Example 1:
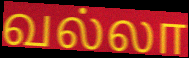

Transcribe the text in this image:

வல்லா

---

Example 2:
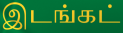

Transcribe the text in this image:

இடங்கட்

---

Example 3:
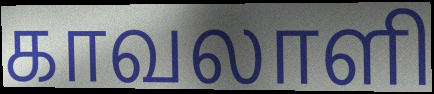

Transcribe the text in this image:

காவலாளி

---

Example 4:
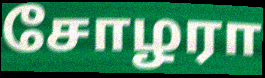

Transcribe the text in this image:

சோழரா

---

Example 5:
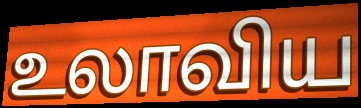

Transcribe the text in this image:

உலாவிய